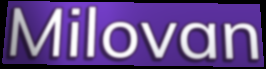
Milovan